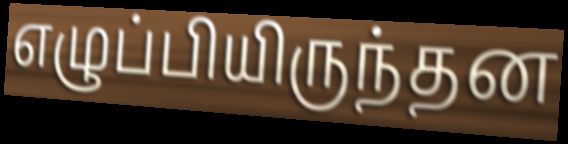
எழுப்பியிருந்தன